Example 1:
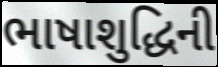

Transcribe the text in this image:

ભાષાશુદ્ધિની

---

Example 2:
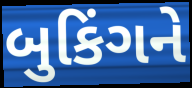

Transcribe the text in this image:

બુકિંગને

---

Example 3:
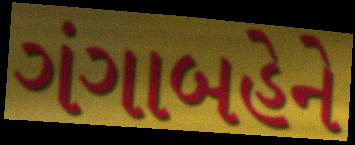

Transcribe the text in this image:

ગંગાબહેને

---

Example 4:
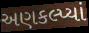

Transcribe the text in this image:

અણકલ્પ્યાં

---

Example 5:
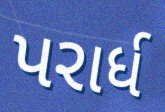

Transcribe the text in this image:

પરાર્ધ